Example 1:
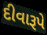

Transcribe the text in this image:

દીવારૂપે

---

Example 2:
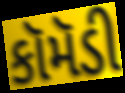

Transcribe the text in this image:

કૉમૅડી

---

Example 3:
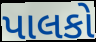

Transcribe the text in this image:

પાલકો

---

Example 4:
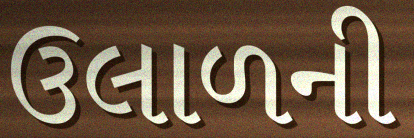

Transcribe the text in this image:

ઉલાળની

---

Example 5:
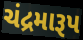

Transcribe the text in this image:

ચંદ્રમારૂપ